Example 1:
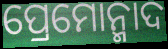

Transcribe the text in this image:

ପ୍ରେମୋନ୍ମାଦ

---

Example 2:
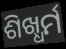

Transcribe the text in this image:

ଶିଖ୍ଧର୍ମ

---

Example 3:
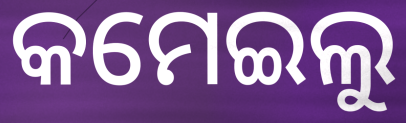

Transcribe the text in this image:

କମେଇଲୁ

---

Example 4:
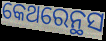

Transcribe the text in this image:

କେଥରେନ୍ଥସ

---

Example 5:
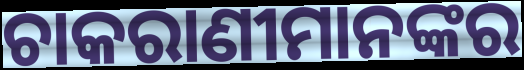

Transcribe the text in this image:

ଚାକରାଣୀମାନଙ୍କର